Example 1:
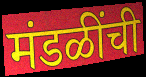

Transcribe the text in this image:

मंडळींची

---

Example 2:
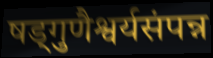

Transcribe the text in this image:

षड्‌गुणैश्वर्यसंपन्न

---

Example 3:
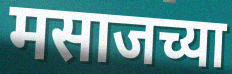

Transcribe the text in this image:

मसाजच्या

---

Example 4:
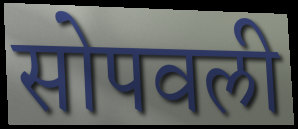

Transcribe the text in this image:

सोपवली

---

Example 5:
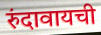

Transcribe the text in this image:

रुंदावायची